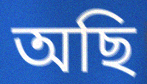
অছি